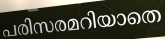
പരിസരമറിയാതെ